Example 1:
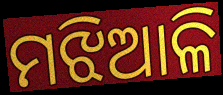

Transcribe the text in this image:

ମଝିଆଳି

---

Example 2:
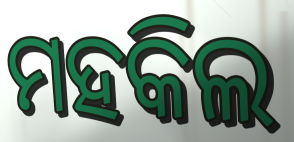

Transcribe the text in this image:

ମହକିଲ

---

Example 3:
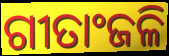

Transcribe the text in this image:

ଗୀତାଂଜଳି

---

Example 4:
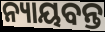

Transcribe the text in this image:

ନ୍ୟାୟବନ୍ତ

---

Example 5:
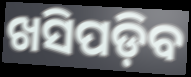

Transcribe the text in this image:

ଖସିପଡ଼ିବ